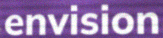
envision